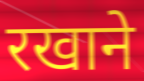
रखाने